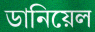
ডানিয়েল